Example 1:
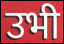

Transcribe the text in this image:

उभी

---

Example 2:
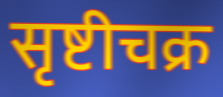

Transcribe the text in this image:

सृष्टीचक्र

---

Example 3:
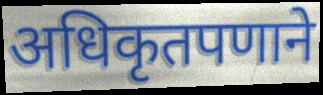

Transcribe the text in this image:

अधिकृतपणाने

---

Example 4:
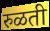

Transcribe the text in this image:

रुळती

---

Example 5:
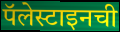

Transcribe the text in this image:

पॅलेस्टाइनची